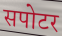
सपोटर